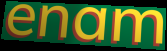
enam